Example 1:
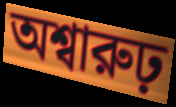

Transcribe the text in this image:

অশ্বারুঢ়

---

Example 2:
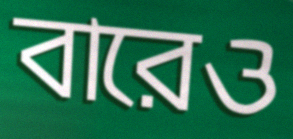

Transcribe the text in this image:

বারেও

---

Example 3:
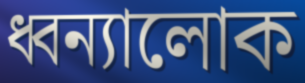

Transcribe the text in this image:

ধ্বন্যালোক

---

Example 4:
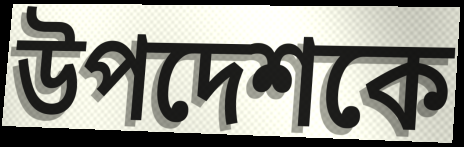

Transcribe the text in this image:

উপদেশকে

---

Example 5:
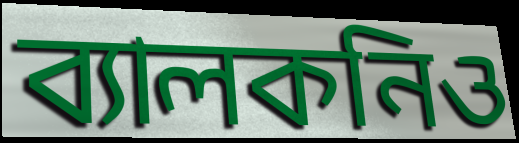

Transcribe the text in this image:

ব্যালকনিও